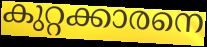
കുറ്റക്കാരനെ